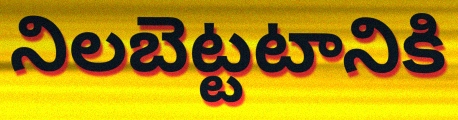
నిలబెట్టటానికి